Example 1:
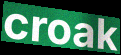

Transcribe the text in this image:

croak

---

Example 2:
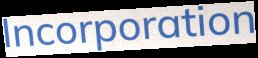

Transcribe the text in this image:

Incorporation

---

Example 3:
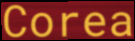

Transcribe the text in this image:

Corea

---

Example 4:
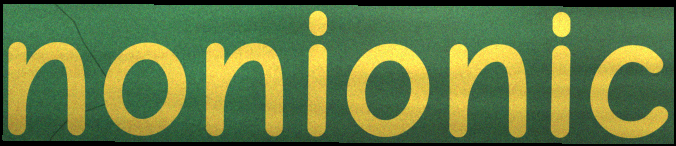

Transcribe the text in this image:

nonionic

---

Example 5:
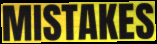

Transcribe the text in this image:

MISTAKES